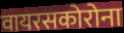
वायरसकोरोना